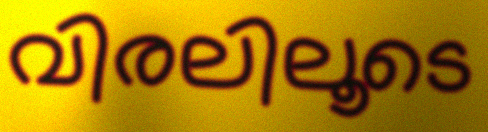
വിരലിലൂടെ